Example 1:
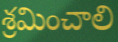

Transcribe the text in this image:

శ్రమించాలి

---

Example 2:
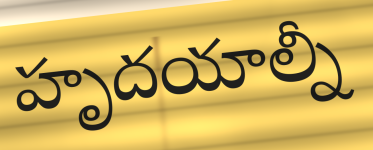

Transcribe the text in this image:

హృదయాల్నీ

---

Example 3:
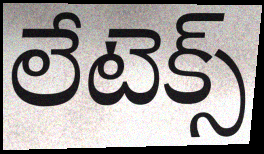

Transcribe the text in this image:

లేటెక్స్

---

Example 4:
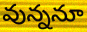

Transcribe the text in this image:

వున్ననూ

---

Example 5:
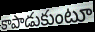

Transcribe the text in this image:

కాపాడుకుంటూ